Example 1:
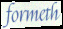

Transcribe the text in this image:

formeth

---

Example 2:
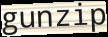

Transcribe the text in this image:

gunzip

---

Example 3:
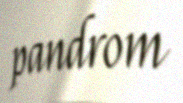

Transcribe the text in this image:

pandrom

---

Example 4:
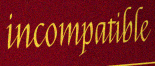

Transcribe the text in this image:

incompatible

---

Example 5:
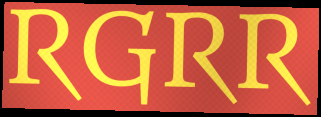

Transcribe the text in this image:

RGRR